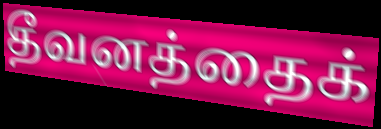
தீவனத்தைக்